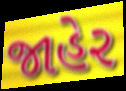
જાહેર